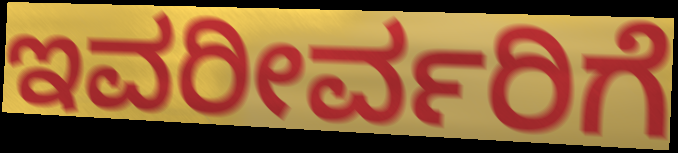
ಇವರೀರ್ವರಿಗೆ